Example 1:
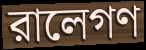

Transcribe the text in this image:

রালেগণ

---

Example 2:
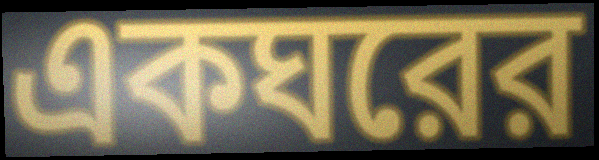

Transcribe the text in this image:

একঘরের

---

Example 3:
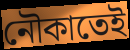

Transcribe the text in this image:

নৌকাতেই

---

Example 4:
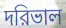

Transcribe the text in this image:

দরিভাল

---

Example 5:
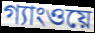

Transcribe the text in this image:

গ্যাংওয়ে